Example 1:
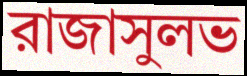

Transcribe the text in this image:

রাজাসুলভ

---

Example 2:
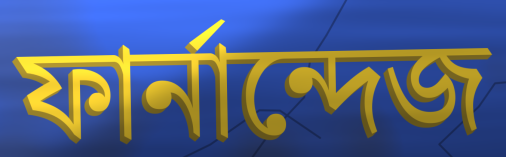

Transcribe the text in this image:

ফার্নান্দেজ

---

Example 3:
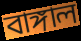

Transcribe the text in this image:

বাঙ্গাল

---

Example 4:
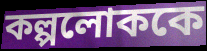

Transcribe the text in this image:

কল্পলোককে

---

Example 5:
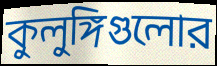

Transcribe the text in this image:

কুলুঙ্গিগুলোর